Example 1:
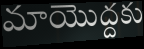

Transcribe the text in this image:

మాయొద్దకు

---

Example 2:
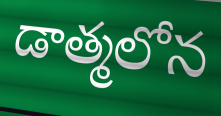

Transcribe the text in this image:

డాత్మలోన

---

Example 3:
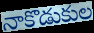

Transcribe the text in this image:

నాకొడుకుల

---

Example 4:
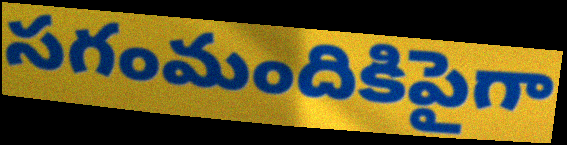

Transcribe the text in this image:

సగంమందికిపైగా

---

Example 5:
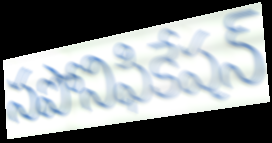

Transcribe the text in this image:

సపోనిఫికేషన్